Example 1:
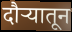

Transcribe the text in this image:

दौऱ्यातून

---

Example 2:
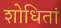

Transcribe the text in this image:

शोधितां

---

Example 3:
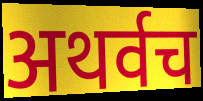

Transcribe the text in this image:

अथर्वच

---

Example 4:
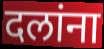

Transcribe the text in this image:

दलांना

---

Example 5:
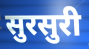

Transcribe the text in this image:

सुरसुरी